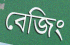
বেজিং